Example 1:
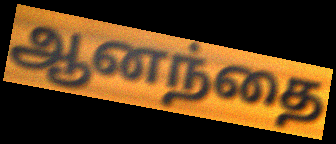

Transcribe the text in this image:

ஆனந்தை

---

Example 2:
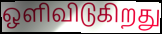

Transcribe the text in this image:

ஒளிவிடுகிறது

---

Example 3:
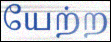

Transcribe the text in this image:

யேற்ற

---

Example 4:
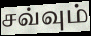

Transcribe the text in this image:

சவ்வும்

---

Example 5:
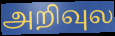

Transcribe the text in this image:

அறிவுல